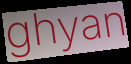
ghyan